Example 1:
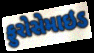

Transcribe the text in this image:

ફુરોસેમાઇડ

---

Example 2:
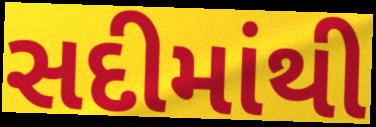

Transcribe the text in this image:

સદીમાંથી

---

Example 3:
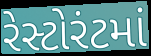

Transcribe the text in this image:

રેસ્ટોરંટમાં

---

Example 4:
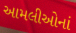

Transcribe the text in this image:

આમલીઓનાં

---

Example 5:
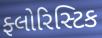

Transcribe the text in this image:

ફ્લોરિસ્ટિક